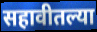
सहावीतल्या